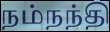
நம்நந்தி